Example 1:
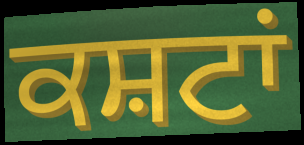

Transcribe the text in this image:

ਕਸ਼ਟਾਂ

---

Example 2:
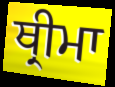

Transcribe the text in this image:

ਥ੍ਰੀਮਾ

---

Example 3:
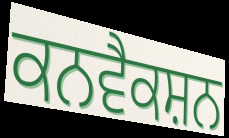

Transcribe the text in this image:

ਕਨਵੈਕਸ਼ਨ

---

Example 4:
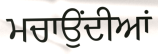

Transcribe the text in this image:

ਮਚਾਉਂਦੀਆਂ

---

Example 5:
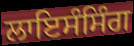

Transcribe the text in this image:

ਲਾਇਸੰਸਿੰਗ